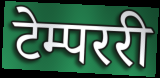
टेम्पररी